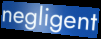
negligent